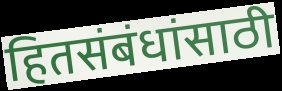
हितसंबंधांसाठी